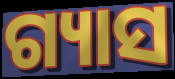
ଗ୍ୟାସ